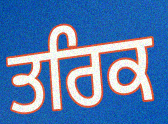
ਤਰਿਕ